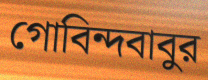
গোবিন্দবাবুর